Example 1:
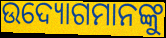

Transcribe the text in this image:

ଉଦ୍ୟୋଗମାନଙ୍କୁ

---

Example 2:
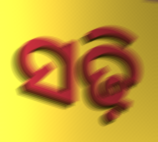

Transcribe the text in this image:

ସଢ଼ି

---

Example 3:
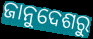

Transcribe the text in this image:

ଜାନୁଦେଶରୁ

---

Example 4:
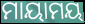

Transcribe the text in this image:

ମାୟାମୟ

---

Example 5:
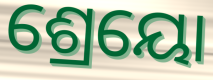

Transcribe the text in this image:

ଶ୍ରେୟୋ